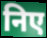
निए